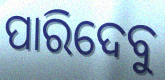
ପାରିଦେବୁ